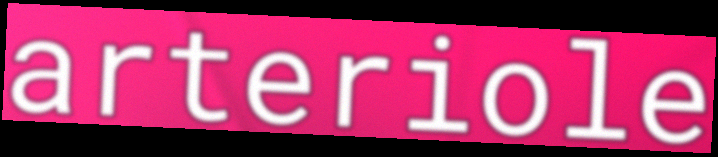
arteriole